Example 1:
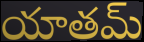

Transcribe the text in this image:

యాతమ్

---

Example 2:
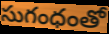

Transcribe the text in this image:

సుగంధంతో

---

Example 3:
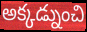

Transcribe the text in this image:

అక్కడ్నుంచి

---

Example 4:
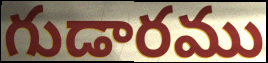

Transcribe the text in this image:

గుడారము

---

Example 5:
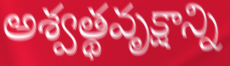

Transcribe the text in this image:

అశ్వత్థవృక్షాన్ని